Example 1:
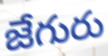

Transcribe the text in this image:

జేగురు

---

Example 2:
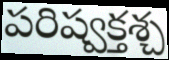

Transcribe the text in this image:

పరిష్వక్తశ్చ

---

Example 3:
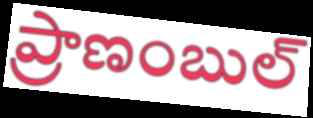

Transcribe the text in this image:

ప్రాణంబుల్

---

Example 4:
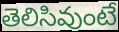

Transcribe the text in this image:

తెలిసివుంటే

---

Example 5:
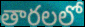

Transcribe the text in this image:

తారలలో